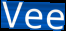
Vee